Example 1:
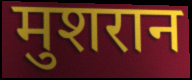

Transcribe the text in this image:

मुशरान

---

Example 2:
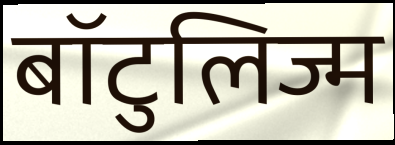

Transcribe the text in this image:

बॉटुलिज्म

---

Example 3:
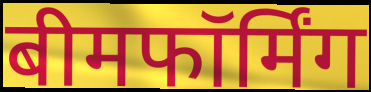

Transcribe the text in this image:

बीमफॉर्मिंग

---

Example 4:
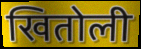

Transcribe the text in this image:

खितोली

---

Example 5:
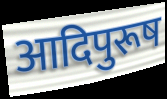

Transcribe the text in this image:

आदिपुरूष